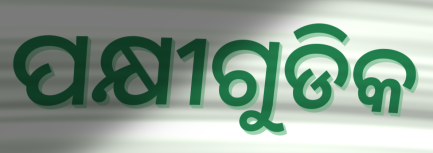
ପକ୍ଷୀଗୁଡିକ